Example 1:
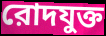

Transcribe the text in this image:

রোদযুক্ত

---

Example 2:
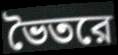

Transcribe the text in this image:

ভৈতরে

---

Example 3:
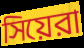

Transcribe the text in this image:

সিয়েরা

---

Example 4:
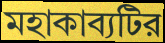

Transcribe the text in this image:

মহাকাব্যটির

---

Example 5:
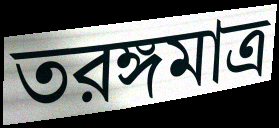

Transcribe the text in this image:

তরঙ্গমাত্র